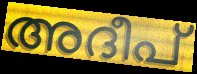
അദീപ്